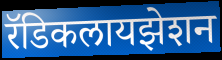
रॅडिकलायझेशन